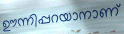
ഊന്നിപ്പറയാനാണ്